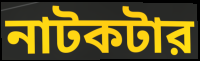
নাটকটার